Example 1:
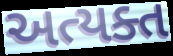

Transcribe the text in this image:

અત્યક્ત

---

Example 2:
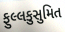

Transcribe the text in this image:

ફુલ્લકુસુમિત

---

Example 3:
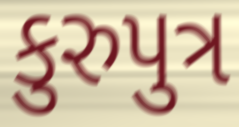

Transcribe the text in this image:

કુરુપુત્ર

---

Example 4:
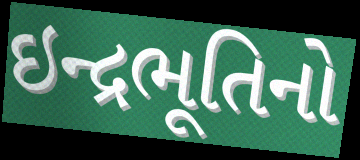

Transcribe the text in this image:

ઇન્દ્રભૂતિનો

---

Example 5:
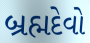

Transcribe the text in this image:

બ્રહ્મદેવો